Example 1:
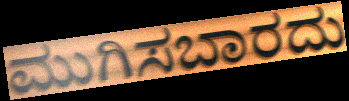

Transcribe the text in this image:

ಮುಗಿಸಬಾರದು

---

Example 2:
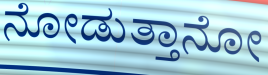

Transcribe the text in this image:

ನೋಡುತ್ತಾನೋ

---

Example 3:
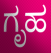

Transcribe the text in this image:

ಗೃಹ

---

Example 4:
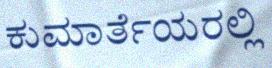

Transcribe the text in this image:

ಕುಮಾರ್ತೆಯರಲ್ಲಿ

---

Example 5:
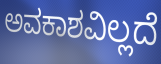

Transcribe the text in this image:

ಅವಕಾಶವಿಲ್ಲದೆ